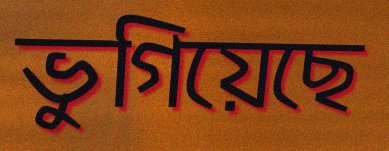
ভুগিয়েছে